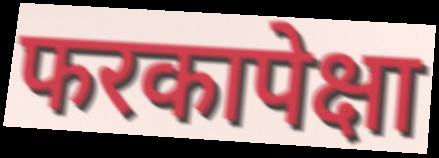
फरकापेक्षा